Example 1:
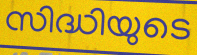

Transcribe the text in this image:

സിദ്ധിയുടെ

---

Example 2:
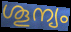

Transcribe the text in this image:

ശൂന്യം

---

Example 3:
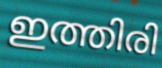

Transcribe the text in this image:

ഇത്തിരി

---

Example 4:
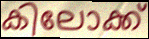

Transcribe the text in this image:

കിലോക്ക്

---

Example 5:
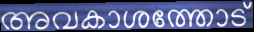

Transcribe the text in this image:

അവകാശത്തോട്